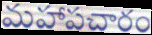
మహాపచారం